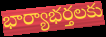
భార్యాభర్తలకు